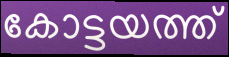
കോട്ടയത്ത്